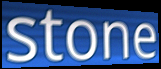
stone